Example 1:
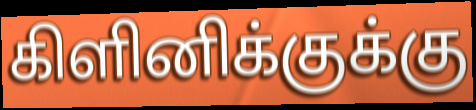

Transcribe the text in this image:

கிளினிக்குக்கு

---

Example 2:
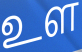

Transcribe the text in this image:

உள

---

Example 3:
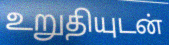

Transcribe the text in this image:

உறுதியுடன்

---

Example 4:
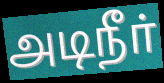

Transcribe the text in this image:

அடிநீர்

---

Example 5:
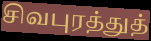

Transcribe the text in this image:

சிவபுரத்துத்